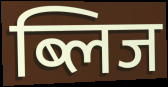
ब्लिज